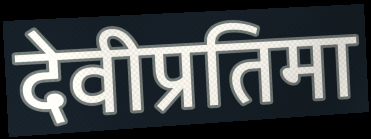
देवीप्रतिमा